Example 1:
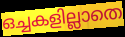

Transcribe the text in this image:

ഒച്ചകളില്ലാതെ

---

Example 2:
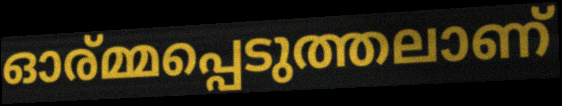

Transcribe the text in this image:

ഓര്മ്മപ്പെടുത്തലാണ്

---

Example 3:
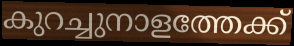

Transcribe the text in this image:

കുറച്ചുനാളത്തേക്ക്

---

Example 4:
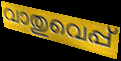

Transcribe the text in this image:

വാതുവെപ്പ്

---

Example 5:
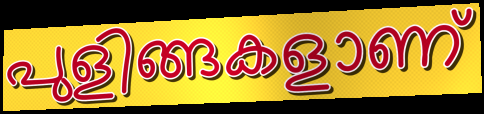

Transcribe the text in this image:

പുളിങ്ങകളാണ്